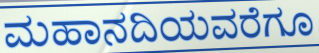
ಮಹಾನದಿಯವರೆಗೂ